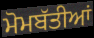
ਮੋਮਬੱਤੀਆਂ